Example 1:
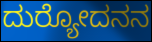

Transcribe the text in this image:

ದುರ್‍ಯೋದನನ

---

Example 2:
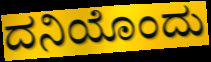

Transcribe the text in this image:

ದನಿಯೊಂದು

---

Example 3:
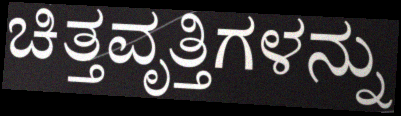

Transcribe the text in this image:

ಚಿತ್ತವೃತ್ತಿಗಳನ್ನು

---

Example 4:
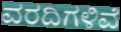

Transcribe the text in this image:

ವರದಿಗಳಿವೆ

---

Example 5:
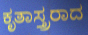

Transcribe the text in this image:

ಕೃತಾಸ್ತ್ರರಾದ